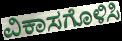
ವಿಕಾಸಗೊಳಿಸಿ